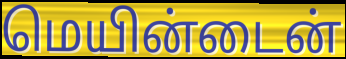
மெயின்டைன்